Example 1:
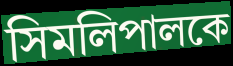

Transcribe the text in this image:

সিমলিপালকে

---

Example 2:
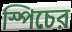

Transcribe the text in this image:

স্পিচের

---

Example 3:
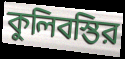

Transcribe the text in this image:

কুলিবস্তির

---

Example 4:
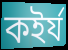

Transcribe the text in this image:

কইর্য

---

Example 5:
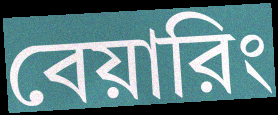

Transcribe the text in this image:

বেয়ারিং